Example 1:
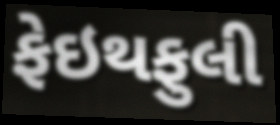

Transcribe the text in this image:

ફેઇથફુલી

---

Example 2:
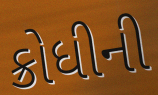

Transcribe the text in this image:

ક્રોધીની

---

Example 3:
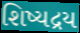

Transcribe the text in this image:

શિષ્યદ્રય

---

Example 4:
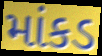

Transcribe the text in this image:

માંકડ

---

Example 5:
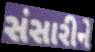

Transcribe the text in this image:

સંસારીને